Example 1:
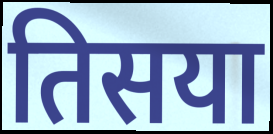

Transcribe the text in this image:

तिसया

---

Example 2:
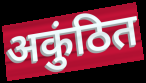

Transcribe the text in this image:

अकुंठित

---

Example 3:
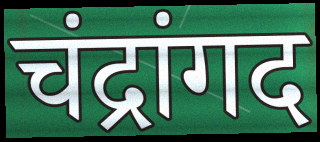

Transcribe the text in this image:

चंद्रांगद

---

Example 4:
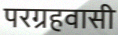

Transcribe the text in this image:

परग्रहवासी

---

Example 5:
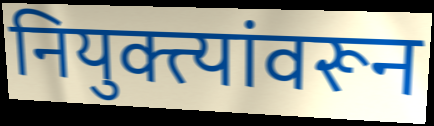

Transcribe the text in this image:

नियुक्त्यांवरून